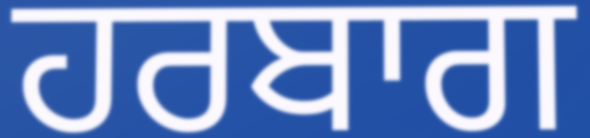
ਹਰਬਾਗ